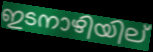
ഇടനാഴിയില്